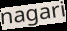
nagari